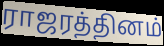
ராஜரத்தினம்